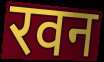
रवन